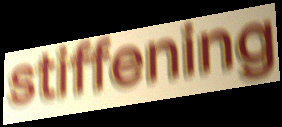
stiffening